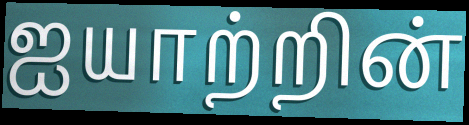
ஐயாற்றின்